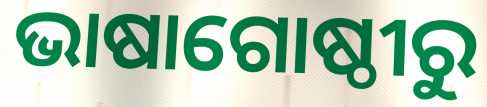
ଭାଷାଗୋଷ୍ଠୀରୁ